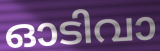
ഓടിവാ